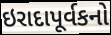
ઇરાદાપૂર્વકનો